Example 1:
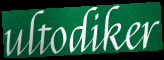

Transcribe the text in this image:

ultodiker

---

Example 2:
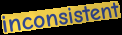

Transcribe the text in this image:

inconsistent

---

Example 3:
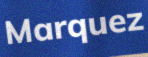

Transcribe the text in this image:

Marquez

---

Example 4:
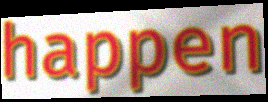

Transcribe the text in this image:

happen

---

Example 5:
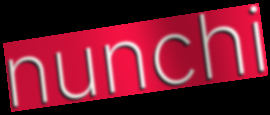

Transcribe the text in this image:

nunchi